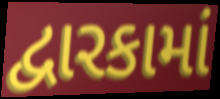
દ્વારકામાં